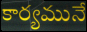
కార్యమునే